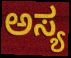
ಅಸ್ಯ